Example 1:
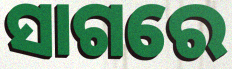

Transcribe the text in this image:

ସାଗରେ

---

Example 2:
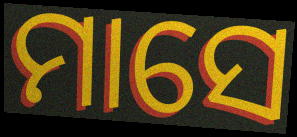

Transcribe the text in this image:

ମାସେ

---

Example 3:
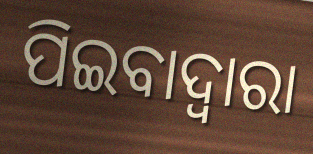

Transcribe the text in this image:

ପିଇବାଦ୍ଵାରା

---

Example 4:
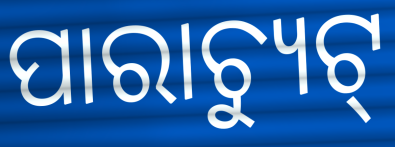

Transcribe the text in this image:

ପାରାଚ୍ୟୁଟ୍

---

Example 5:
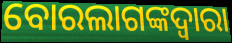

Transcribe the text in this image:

ବୋରଲାଗଙ୍କଦ୍ୱାରା